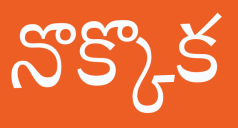
నొక్కొక